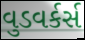
વુડવર્કર્સ